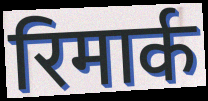
रिमार्क